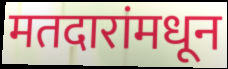
मतदारांमधून